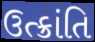
ઉત્ક્રાંતિ